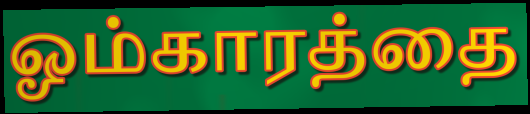
ஓம்காரத்தை